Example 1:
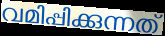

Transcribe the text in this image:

വമിപ്പിക്കുന്നത്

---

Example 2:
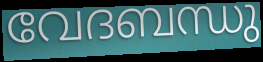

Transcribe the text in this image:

വേദബന്ധു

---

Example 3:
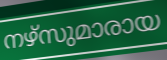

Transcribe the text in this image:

നഴ്സുമാരായ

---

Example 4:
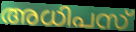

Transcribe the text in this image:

അധിപസ്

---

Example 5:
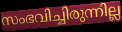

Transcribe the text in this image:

സംഭവിച്ചിരുന്നില്ല